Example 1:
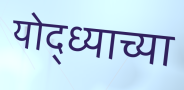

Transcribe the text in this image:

योद्ध्याच्या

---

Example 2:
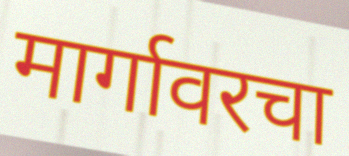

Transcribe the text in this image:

मार्गावरचा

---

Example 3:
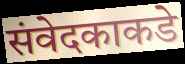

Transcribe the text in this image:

संवेदकाकडे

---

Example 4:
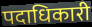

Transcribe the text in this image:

पदाधिकारी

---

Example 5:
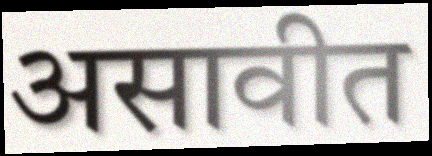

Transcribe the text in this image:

असावीत